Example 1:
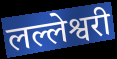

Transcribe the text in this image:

लल्लेश्वरी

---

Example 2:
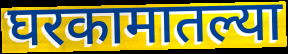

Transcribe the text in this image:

घरकामातल्या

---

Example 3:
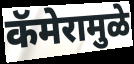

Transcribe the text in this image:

कॅमेरामुळे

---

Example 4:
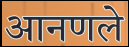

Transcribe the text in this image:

आनणले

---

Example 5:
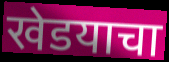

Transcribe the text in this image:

खेडयाचा